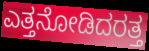
ಎತ್ತನೋಡಿದರತ್ತ